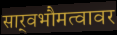
सार्वभौमत्वावर